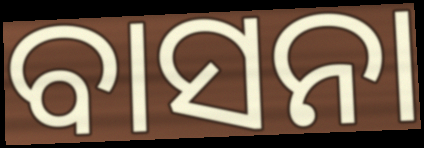
ବାସନା